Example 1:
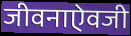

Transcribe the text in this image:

जीवनाऐवजी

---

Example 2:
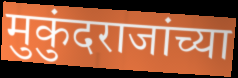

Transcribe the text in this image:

मुकुंदराजांच्या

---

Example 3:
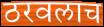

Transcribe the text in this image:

ठरवलाच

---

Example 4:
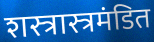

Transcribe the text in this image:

शस्त्रास्त्रमंडित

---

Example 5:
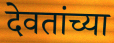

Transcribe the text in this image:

देवतांच्या